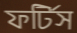
ফর্টিস